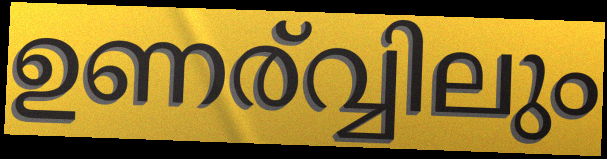
ഉണര്വ്വിലും